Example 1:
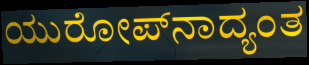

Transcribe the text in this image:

ಯುರೋಪ್‌ನಾದ್ಯಂತ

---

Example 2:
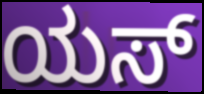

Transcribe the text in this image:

ಯಸ್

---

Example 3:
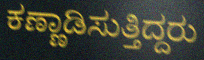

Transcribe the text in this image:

ಕಣ್ಣಾಡಿಸುತ್ತಿದ್ದರು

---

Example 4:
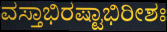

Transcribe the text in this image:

ವಸ್ತಾಭಿರಷ್ಟಾಭಿರೀಶಃ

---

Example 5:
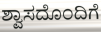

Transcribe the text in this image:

ಶ್ವಾಸದೊಂದಿಗೆ